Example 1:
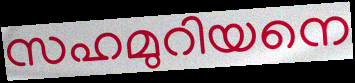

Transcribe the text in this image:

സഹമുറിയനെ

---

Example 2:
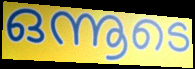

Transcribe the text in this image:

ഒന്നൂടെ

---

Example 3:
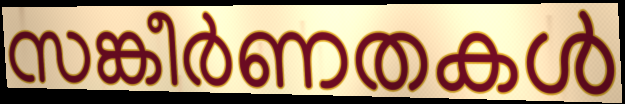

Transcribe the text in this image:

സങ്കീർണതകൾ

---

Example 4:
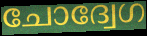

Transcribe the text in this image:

ചോദ്വേഗ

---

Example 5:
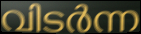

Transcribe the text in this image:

വിടർന്ന